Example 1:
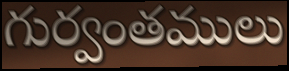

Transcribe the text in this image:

గుర్వంతములు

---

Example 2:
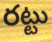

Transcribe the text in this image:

రట్టు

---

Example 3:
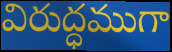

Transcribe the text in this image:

విరుద్ధముగా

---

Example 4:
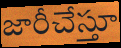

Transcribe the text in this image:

జారీచేస్తూ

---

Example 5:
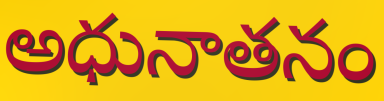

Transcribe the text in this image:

అధునాతనం